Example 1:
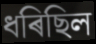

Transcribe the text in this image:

ধৰিছিল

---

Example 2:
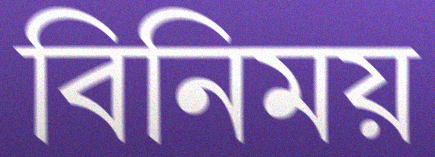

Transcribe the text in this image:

বিনিময়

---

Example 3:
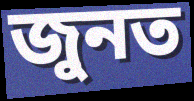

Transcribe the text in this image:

জুনত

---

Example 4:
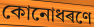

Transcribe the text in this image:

কোনোধৰণে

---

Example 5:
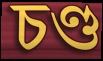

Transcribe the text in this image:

চণ্ড